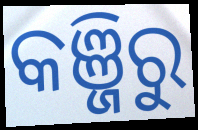
କଞ୍ଜିରୁ